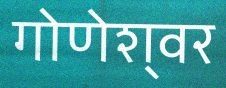
गोणेश्वर